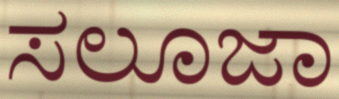
ಸಲೂಜಾ